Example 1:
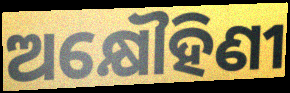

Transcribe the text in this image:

ଅକ୍ଷୌହିଣୀ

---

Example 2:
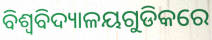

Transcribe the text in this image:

ବିଶ୍ଵବିଦ୍ୟାଳୟଗୁଡିକରେ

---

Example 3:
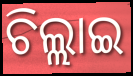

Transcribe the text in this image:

ଚିଲ୍ଲାଇ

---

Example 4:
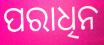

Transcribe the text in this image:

ପରାଧିନ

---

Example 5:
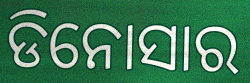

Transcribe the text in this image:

ଡିନୋସାର